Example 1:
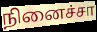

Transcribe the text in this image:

நினைச்சா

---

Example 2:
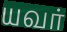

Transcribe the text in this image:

யவர்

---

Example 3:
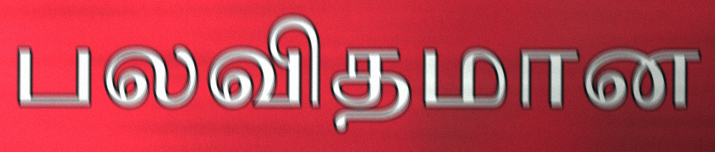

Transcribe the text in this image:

பலவிதமான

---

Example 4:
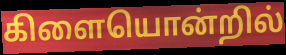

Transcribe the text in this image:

கிளையொன்றில்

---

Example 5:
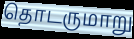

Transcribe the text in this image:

தொடருமாறு